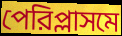
পেরিপ্লাসমে